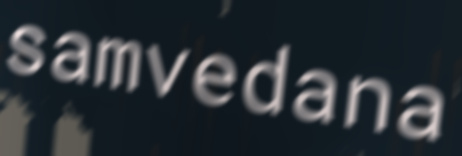
samvedana